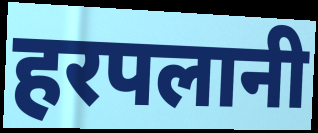
हरपलानी